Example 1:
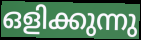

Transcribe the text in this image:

ഒളിക്കുന്നു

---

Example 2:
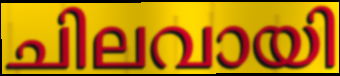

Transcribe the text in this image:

ചിലവായി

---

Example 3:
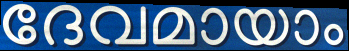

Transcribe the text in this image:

ദേവമായാം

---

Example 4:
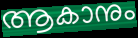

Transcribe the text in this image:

ആകാനും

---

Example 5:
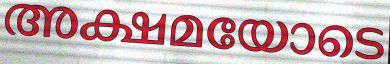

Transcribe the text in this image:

അക്ഷമയോടെ